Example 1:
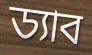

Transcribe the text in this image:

ড্যাব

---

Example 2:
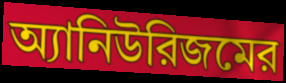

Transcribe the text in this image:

অ্যানিউরিজমের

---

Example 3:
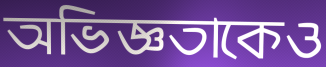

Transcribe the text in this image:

অভিজ্ঞতাকেও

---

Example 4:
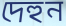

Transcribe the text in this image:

দেহুন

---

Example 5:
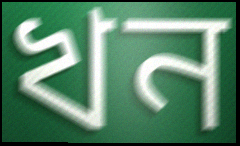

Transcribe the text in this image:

খন